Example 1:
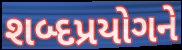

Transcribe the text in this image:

શબ્દપ્રયોગને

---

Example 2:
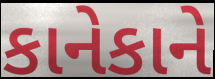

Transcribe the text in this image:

કાનેકાને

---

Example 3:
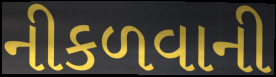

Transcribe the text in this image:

નીકળવાની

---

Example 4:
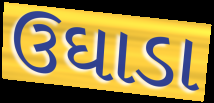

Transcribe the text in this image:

ઉઘાડા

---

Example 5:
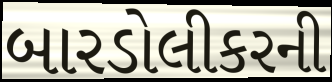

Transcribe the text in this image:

બારડોલીકરની